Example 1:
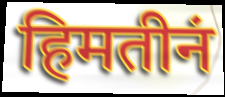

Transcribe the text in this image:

हिमतीनं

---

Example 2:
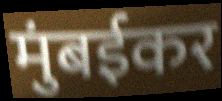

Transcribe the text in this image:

मुंबईकर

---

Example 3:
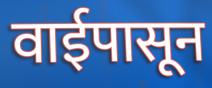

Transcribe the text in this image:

वाईपासून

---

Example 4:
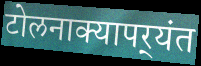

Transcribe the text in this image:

टोलनाक्यापर्यंत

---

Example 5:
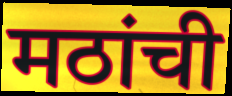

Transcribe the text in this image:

मठांची